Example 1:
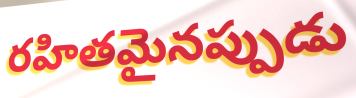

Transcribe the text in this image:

రహితమైనప్పుడు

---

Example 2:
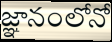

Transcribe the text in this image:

జ్ఞానంలోనో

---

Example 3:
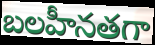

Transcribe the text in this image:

బలహీనతగా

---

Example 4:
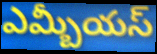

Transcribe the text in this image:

ఎమ్బీయస్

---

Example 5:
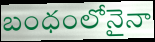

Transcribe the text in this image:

బంధంలోనైనా